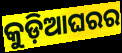
କୁଡ଼ିଆଘରର